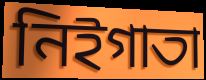
নিইগাতা